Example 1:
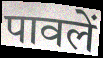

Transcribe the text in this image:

पावलें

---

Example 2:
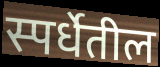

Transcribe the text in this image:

स्पर्धेतील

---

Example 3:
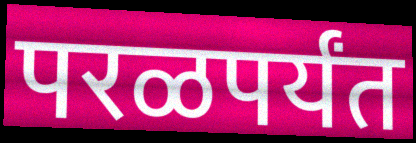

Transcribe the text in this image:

परळपर्यंत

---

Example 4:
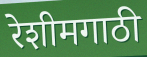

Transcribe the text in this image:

रेशीमगाठी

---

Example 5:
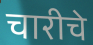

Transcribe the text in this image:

चारीचे